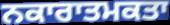
ਨਕਾਰਾਤਮਕਤਾ